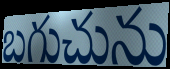
బగుచును